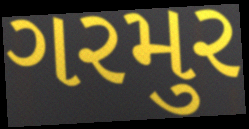
ગરમુર